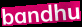
bandhu